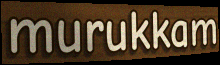
murukkam